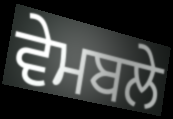
ਵੇਮਬਲੇ